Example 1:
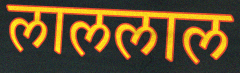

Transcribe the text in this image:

लाललाल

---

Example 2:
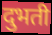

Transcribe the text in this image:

दुभती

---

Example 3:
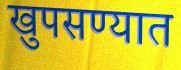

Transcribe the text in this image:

खुपसण्यात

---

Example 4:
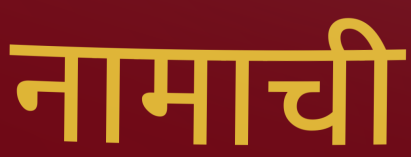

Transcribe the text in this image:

नामाची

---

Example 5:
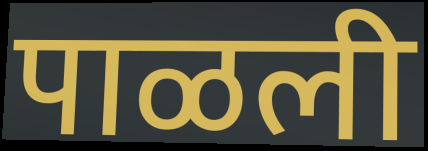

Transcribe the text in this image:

पाळली